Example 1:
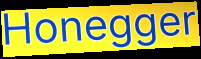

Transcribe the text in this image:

Honegger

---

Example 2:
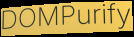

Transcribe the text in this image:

DOMPurify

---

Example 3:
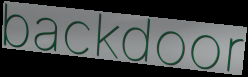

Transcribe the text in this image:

backdoor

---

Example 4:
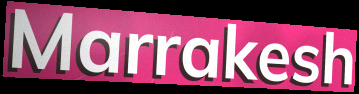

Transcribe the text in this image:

Marrakesh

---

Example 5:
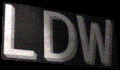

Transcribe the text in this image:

LDW